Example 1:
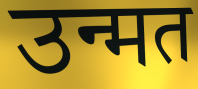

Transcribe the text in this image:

उन्मत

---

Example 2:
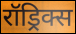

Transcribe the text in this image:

रॉड्रिक्स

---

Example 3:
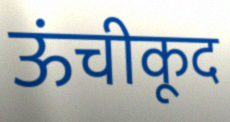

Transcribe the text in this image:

ऊंचीकूद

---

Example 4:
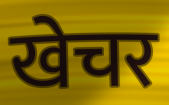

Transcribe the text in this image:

खेचर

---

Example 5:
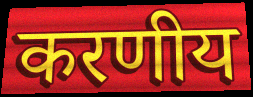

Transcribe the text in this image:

करणीय